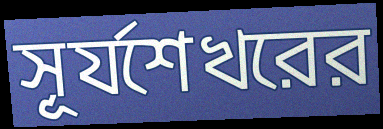
সূর্যশেখরের